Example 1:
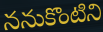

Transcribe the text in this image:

ననుకొంటిని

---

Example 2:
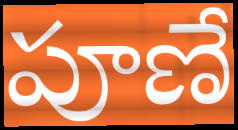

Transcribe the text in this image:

పూణే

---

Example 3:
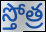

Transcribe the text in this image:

స్తోత్ర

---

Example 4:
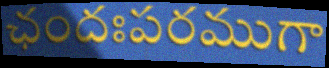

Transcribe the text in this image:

ఛందఃపరముగా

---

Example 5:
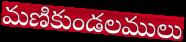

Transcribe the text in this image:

మణికుండలములు